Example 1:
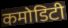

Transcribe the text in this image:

कमोडिटी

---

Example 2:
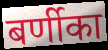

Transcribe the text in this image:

बर्णीका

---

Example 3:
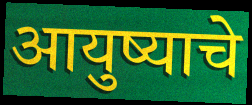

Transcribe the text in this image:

आयुष्याचे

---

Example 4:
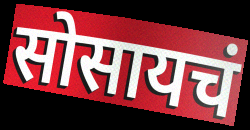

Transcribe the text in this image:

सोसायचं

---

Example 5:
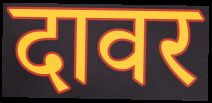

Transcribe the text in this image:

दावर